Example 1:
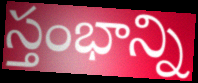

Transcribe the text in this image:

స్తంభాన్ని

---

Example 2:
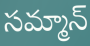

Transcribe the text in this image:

సమ్మాన్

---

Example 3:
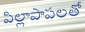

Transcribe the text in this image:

పిల్లాపాపలతో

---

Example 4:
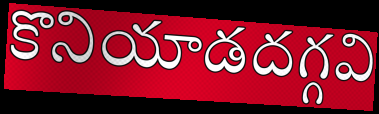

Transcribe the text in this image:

కొనియాడదగ్గవి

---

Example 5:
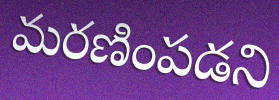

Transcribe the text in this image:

మరణింపడని